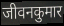
जीवनकुमार